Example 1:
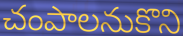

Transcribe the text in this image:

చంపాలనుకొని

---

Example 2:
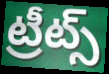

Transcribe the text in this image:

ట్రీట్స్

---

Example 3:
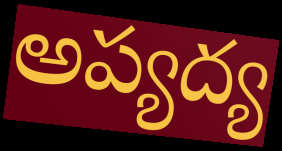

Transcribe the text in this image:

అప్యద్య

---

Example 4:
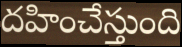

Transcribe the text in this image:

దహించేస్తుంది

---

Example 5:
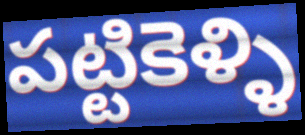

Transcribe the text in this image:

పట్టికెళ్ళి